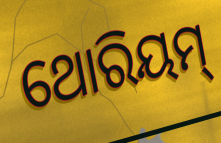
ଥୋରିୟମ୍